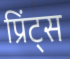
प्रिंट्स